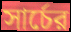
সার্চের